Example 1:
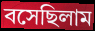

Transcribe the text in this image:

বসেছিলাম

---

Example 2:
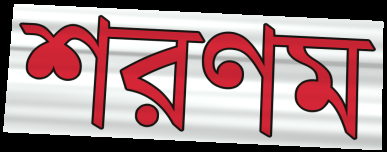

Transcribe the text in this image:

শরণম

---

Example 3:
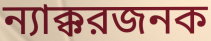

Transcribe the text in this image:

ন্যাক্করজনক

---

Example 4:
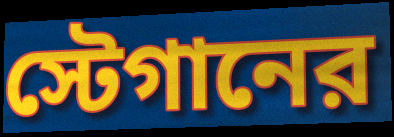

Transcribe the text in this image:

স্টেগানের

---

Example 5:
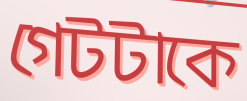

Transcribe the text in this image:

গেটটাকে